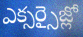
ఎక్సర్సైజ్లో